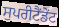
ਸੁਪਰੀਟੈਂਡੇਂਟ